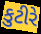
કુટીરે